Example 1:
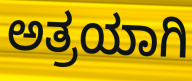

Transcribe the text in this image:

ಅತ್ರಯಾಗಿ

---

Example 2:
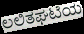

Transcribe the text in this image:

ಲಲಿತಘಟೆಯ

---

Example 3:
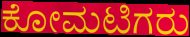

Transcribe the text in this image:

ಕೋಮಟಿಗರು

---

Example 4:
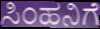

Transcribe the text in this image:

ಸಿಂಹನಿಗೆ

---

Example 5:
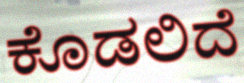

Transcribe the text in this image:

ಕೊಡಲಿದೆ